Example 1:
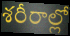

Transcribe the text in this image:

శరీరాల్లో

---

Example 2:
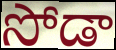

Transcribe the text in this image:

సోడా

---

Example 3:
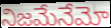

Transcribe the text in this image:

నిజమేనేమో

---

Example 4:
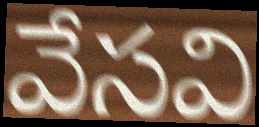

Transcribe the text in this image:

వేసవి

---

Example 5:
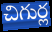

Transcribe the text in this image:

చిగుర్ల